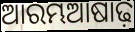
ଆରମ୍ଭଆଷାଢ଼